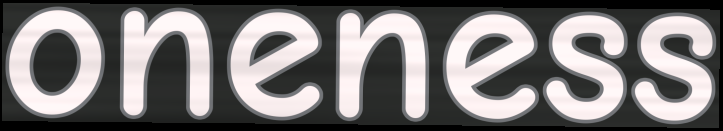
oneness